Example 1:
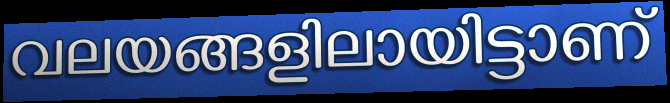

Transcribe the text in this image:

വലയങ്ങളിലായിട്ടാണ്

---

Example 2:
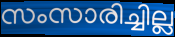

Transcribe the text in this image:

സംസാരിച്ചില്ല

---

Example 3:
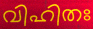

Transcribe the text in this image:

വിഹിതഃ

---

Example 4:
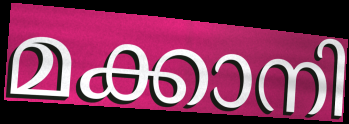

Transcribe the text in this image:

മക്കാനി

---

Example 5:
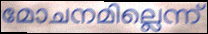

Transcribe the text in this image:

മോചനമില്ലെന്ന്